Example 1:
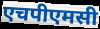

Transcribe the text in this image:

एचपीएमसी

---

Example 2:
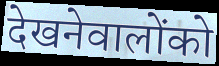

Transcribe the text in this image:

देखनेवालोंको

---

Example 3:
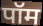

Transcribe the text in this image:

पॉम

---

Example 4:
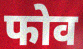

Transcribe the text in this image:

फोव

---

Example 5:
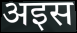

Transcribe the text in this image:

अइस